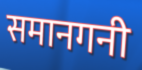
समानगनी